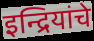
इन्द्रियांचे